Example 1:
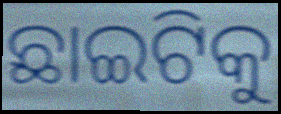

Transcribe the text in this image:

ଛାଇଟିକୁ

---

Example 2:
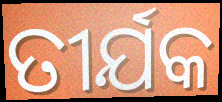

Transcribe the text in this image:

ତୀର୍ଯକ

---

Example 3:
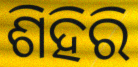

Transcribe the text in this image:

ଶିହିରି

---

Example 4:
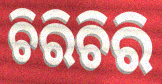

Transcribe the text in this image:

ଚିରିଚିରି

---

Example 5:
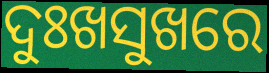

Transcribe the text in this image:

ଦୁଃଖସୁଖରେ